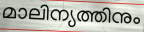
മാലിന്യത്തിനും